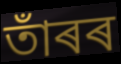
তাঁৰৰ